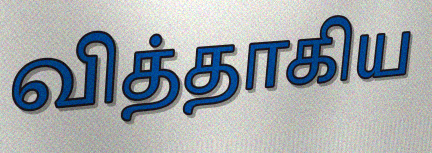
வித்தாகிய